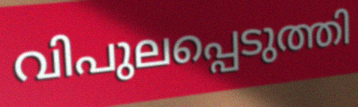
വിപുലപ്പെടുത്തി